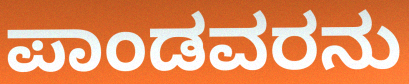
ಪಾಂಡವರನು